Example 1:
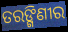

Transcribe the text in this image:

ତରଙ୍ଗିଣୀର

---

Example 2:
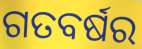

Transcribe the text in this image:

ଗତବର୍ଷର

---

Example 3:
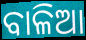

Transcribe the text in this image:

ବାଳିଆ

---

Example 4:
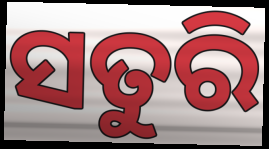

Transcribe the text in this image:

ସତୁରି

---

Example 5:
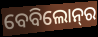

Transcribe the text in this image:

ବେବିଲୋନ୍‌ର